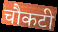
चौकटी